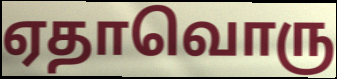
ஏதாவொரு